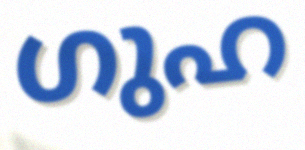
ഗുഹ